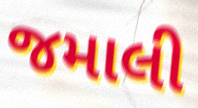
જમાલી